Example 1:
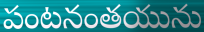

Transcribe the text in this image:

పంటనంతయును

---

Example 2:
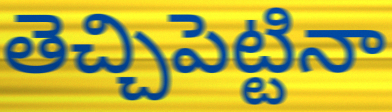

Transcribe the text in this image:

తెచ్చిపెట్టినా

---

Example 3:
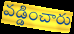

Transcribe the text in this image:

వడ్డించారు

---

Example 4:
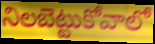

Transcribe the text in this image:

నిలబెట్టుకోవాలో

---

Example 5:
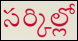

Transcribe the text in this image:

సర్కిల్లో